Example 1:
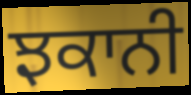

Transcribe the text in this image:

ਝਕਾਨੀ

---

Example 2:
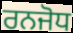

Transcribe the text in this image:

ਰਨਜੋਧ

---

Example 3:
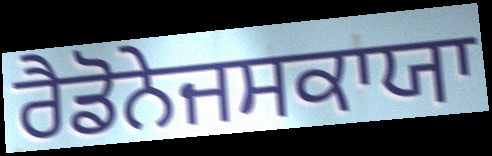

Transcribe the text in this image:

ਰੈਡੋਨੇਜਸਕਾਯਾ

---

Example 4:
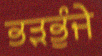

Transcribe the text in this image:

ਭੜਭੁੰਜੇ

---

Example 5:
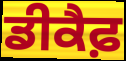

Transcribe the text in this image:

ਡੀਕੈਫ਼